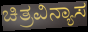
ಚಿತ್ರವಿನ್ಯಾಸ